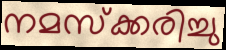
നമസ്ക്കരിച്ചു